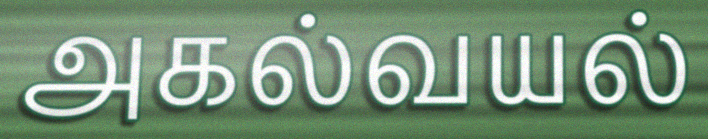
அகல்வயல்